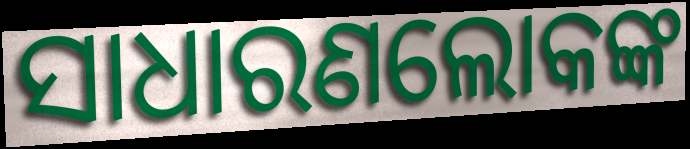
ସାଧାରଣଲୋକଙ୍କ